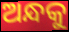
ଅନ୍ଧକୁ